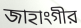
জাহাংগীর